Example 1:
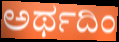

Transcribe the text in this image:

ಅರ್ಥದಿಂ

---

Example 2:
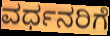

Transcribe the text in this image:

ವರ್ಧನರಿಗೆ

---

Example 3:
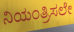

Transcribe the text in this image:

ನಿಯಂತ್ರಿಸಲೇ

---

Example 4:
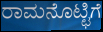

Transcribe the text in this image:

ರಾಮನೊಟ್ಟಿಗೆ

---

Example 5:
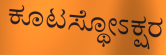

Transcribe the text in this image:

ಕೂಟಸ್ಥೋಽಕ್ಷರ